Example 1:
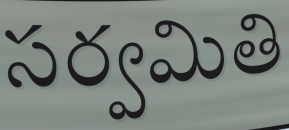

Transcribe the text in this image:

సర్వమితి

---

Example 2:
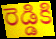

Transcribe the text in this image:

రెడ్డికి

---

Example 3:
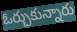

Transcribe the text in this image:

ఓర్చుకున్నారు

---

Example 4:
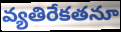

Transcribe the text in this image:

వ్యతిరేకతనూ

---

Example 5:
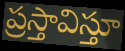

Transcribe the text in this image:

ప్రస్తావిస్తూ